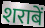
शराबें